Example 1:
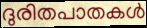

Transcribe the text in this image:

ദുരിതപാതകൾ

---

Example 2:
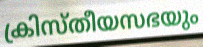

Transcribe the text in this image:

ക്രിസ്തീയസഭയും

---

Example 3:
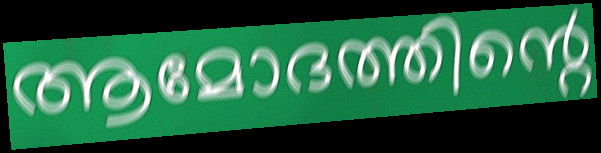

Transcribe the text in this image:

ആമോദത്തിന്റെ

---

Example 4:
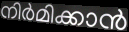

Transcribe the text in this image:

നിർമിക്കാൻ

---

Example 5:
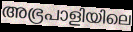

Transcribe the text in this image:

അഭ്രപാളിയിലെ